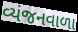
વ્યંજનવાળા